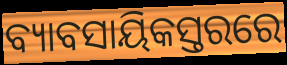
ବ୍ୟାବସାୟିକସ୍ତରରେ